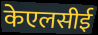
केएलसीई